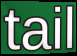
tail